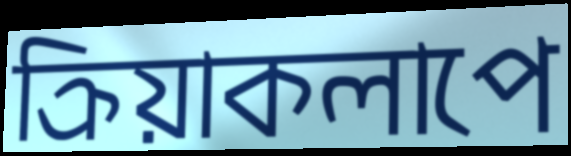
ক্রিয়াকলাপে